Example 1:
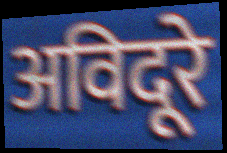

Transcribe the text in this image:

अविदूरे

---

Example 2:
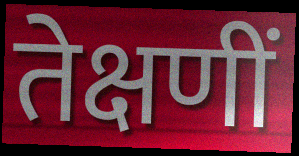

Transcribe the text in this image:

तेक्षणीं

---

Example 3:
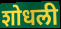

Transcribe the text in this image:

शोधली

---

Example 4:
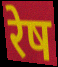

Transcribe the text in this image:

रेष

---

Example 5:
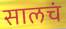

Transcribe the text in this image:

सालचं